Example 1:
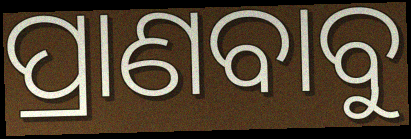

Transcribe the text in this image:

ପ୍ରାଣବାବୁ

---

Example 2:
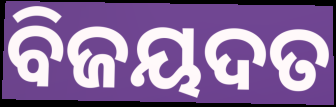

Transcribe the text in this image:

ବିଜୟଦତ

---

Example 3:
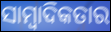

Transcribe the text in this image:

ସାମ୍ୱାଦିକତାର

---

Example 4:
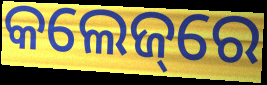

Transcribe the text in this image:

କଲେଜ୍‌ରେ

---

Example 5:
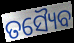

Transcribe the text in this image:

ତସ୍ୟୈବ